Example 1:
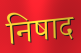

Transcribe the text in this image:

निषाद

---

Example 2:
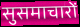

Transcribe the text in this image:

सुसमाचारों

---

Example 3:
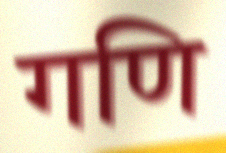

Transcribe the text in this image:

गणि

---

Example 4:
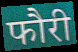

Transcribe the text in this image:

फौरी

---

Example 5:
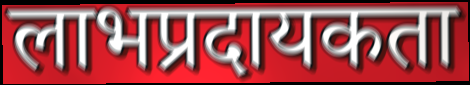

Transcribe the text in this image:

लाभप्रदायकता